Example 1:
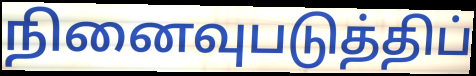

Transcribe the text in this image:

நினைவுபடுத்திப்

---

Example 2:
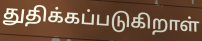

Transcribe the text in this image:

துதிக்கப்படுகிறாள்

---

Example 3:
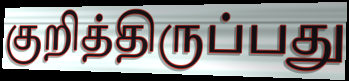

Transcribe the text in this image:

குறித்திருப்பது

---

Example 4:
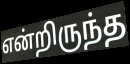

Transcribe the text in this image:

என்றிருந்த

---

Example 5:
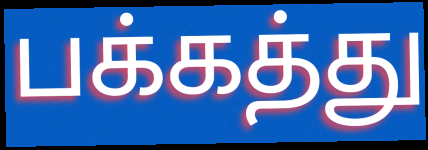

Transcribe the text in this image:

பக்கத்து